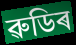
ৱুডিৰ